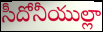
సీదోనీయుల్లా